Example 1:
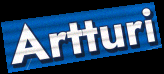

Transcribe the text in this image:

Artturi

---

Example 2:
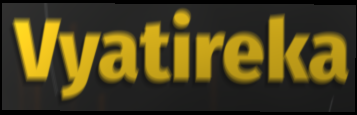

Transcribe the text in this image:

Vyatireka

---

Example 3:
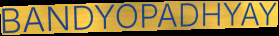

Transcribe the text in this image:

BANDYOPADHYAY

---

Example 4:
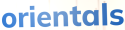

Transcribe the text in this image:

orientals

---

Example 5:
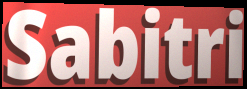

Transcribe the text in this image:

Sabitri